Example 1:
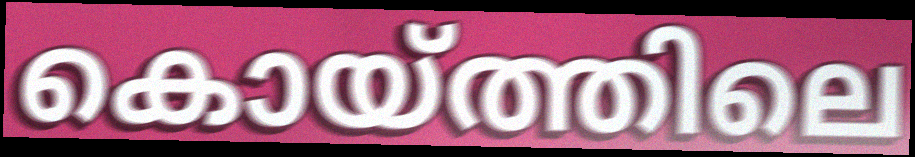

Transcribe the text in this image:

കൊയ്ത്തിലെ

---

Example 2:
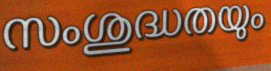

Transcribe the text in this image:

സംശുദ്ധതയും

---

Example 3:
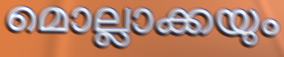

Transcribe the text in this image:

മൊല്ലാക്കയും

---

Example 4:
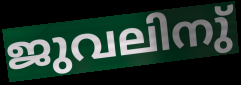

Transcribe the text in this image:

ജുവലിനു്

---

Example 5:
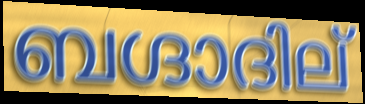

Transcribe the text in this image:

ബഗ്ദാദില്